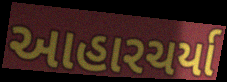
આહારચર્યા